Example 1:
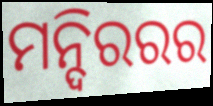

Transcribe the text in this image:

ମନ୍ଦିରରର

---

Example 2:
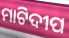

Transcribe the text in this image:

ମାଟିଦୀପ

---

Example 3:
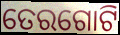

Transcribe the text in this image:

ତେରଗୋଟି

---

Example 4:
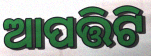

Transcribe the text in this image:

ଆପତ୍ତିଟି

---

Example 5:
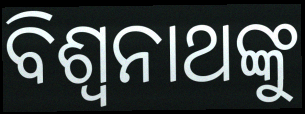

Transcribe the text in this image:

ବିଶ୍ବନାଥଙ୍କୁ